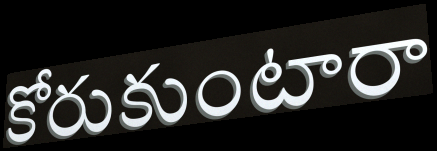
కోరుకుంటారా